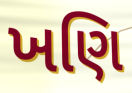
ખણિ